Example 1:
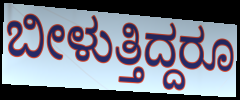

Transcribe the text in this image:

ಬೀಳುತ್ತಿದ್ದರೂ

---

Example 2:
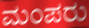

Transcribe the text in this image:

ಮಂಪರು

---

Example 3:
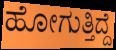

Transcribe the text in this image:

ಹೋಗುತ್ತಿದ್ದೆ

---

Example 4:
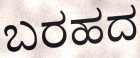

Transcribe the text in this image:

ಬರಹದ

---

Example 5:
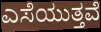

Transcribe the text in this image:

ಎಸೆಯುತ್ತವೆ